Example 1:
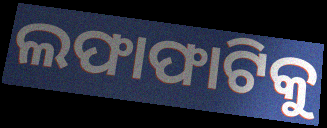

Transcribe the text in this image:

ଲଫାଫାଟିକୁ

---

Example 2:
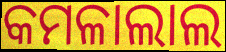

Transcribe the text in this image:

କମଳାଲାଲ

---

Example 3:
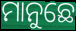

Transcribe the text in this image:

ମାନୁଛେ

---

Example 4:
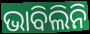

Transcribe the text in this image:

ଭାବିଲିନି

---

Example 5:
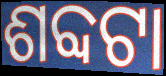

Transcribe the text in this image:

ଶବ୍ଦଟା